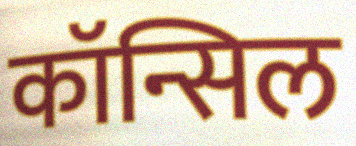
कॉन्सिल